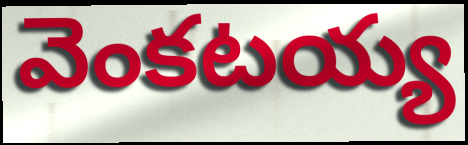
వెంకటయ్య